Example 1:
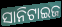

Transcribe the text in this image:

ସାନିଟାଇଜ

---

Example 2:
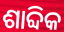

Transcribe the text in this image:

ଶାବ୍ଦିକ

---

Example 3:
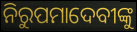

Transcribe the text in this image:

ନିରୁପମାଦେବୀଙ୍କୁ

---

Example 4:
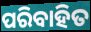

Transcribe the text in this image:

ପରିବାହିତ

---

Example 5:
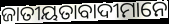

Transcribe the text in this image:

ଜାତୀୟତାବାଦୀମାନେ